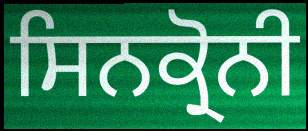
ਸਿਨਕ੍ਰੋਨੀ